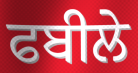
ਫਬੀਲੇ